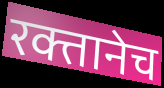
रक्तानेच